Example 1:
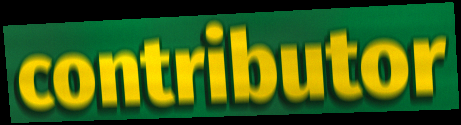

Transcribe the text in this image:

contributor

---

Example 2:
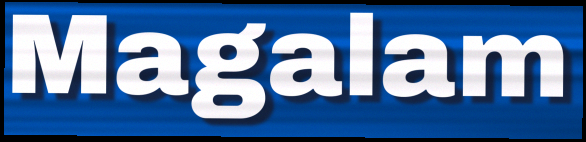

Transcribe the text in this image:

Magalam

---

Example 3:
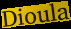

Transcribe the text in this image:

Dioula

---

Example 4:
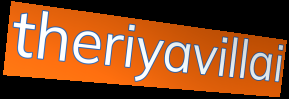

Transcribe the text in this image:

theriyavillai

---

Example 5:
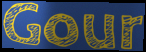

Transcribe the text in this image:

Gour